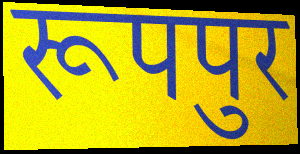
रूपपुर